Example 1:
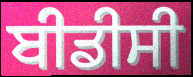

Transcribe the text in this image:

ਬੀਡੀਸੀ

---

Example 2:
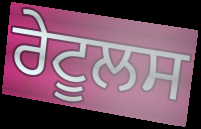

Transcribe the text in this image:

ਰੇਟੂਲਸ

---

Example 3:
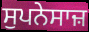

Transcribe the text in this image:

ਸੁਪਨੇਸਾਜ਼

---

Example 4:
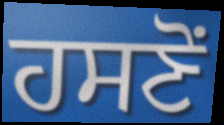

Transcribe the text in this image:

ਹਸਣੋਂ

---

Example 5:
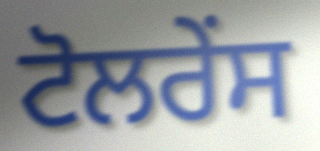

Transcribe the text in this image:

ਟੋਲਰੇਂਸ